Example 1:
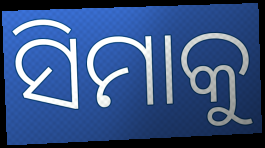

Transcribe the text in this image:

ସିମାକୁ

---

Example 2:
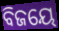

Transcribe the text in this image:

ବିଜୟେ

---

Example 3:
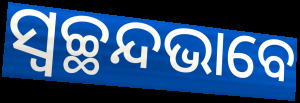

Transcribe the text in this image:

ସ୍ୱଚ୍ଛନ୍ଦଭାବେ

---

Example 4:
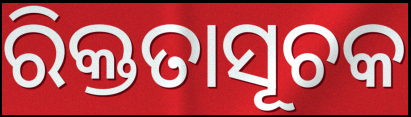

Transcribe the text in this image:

ରିକ୍ତତାସୂଚକ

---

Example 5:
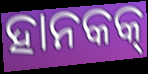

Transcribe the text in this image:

ହାନକକ୍